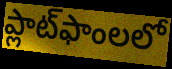
ప్లాట్‌ఫాంలలో